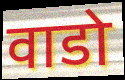
वाडो